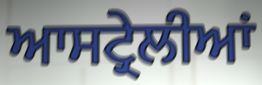
ਆਸਟ੍ਰੇਲੀਆਂ